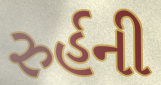
રુર્હની